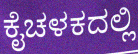
ಕೈಚಳಕದಲ್ಲಿ